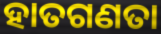
ହାତଗଣତା